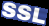
SSL